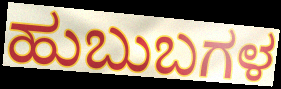
ಹುಬುಬಗಳ